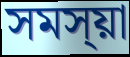
সমস্য়া